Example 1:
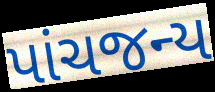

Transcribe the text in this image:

પાંચજન્ય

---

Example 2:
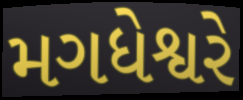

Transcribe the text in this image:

મગધેશ્વરે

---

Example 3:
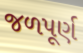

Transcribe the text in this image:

જળપૂર્ણ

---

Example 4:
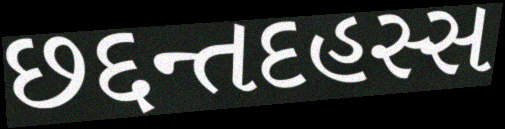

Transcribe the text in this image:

છદ્દન્તદહસ્સ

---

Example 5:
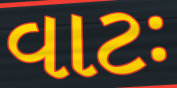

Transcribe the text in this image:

વાટઃ